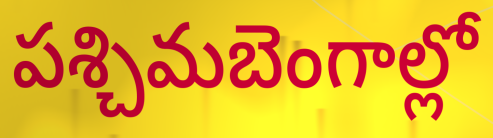
పశ్చిమబెంగాల్లో